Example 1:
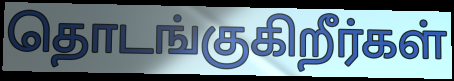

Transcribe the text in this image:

தொடங்குகிறீர்கள்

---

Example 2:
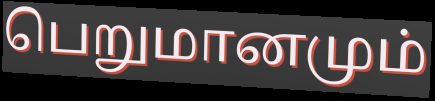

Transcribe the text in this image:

பெறுமானமும்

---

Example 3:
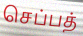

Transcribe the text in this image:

செப்பத்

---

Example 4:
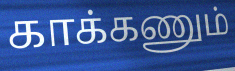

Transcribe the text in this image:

காக்கணும்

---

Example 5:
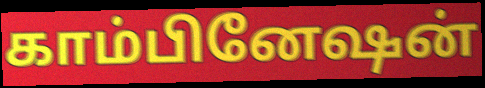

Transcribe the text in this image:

காம்பினேஷன்